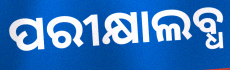
ପରୀକ୍ଷାଲବ୍ଧ